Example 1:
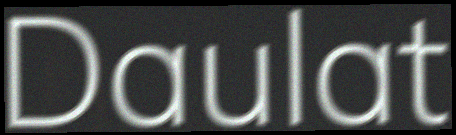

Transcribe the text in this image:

Daulat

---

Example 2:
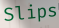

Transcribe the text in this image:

Slips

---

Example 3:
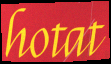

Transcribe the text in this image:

hotat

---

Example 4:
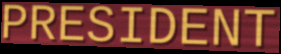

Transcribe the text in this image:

PRESIDENT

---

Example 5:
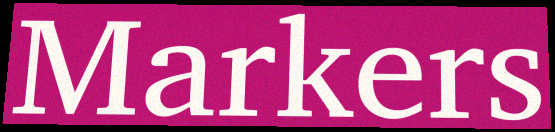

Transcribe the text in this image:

Markers